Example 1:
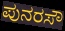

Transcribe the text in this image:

ಪುನರಸೌ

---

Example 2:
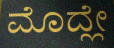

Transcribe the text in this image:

ಮೊದ್ಲೇ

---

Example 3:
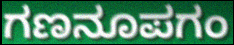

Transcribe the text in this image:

ಗಣನೂಪಗಂ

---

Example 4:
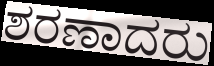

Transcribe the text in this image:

ಶರಣಾದರು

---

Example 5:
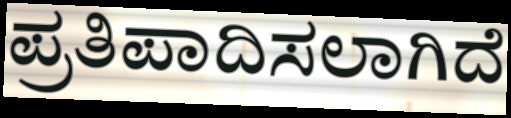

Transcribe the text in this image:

ಪ್ರತಿಪಾದಿಸಲಾಗಿದೆ